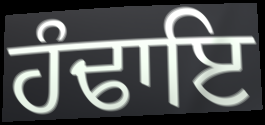
ਹੰਢਾਇ